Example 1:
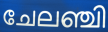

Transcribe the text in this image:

ചേലഞ്ചി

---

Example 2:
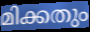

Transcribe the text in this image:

മിക്കതും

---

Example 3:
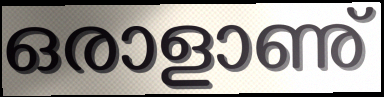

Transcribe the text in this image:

ഒരാളാണു്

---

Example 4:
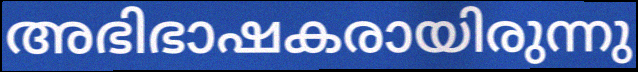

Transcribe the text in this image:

അഭിഭാഷകരായിരുന്നു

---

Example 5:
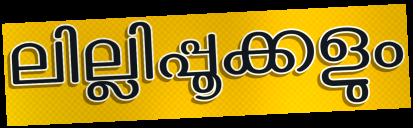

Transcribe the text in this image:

ലില്ലിപ്പൂക്കളും